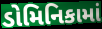
ડોમિનિકામાં